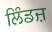
ਲਿੰਡਜ਼